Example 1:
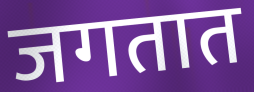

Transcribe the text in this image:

जगतात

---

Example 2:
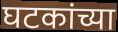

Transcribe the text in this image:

घटकांच्या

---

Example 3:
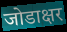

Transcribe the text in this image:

जोडाक्षर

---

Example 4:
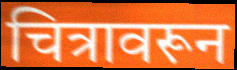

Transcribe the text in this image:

चित्रावरून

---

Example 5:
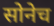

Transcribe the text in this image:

सोनेच